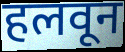
हलवून